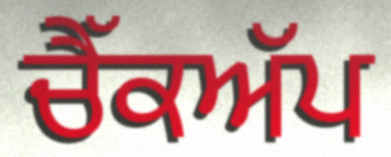
ਚੈੱਕਅੱਪ